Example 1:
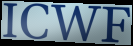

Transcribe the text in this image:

ICWF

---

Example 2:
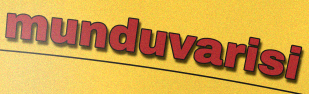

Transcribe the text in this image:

munduvarisi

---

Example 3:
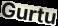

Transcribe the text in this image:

Gurtu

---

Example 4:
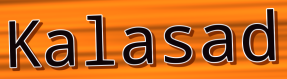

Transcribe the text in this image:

Kalasad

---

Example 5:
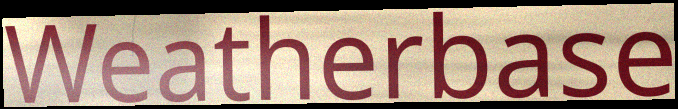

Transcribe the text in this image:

Weatherbase